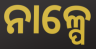
ନାଳ୍ପେ